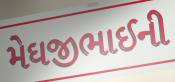
મેઘજીભાઈની